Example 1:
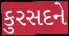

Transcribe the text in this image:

કુરસદને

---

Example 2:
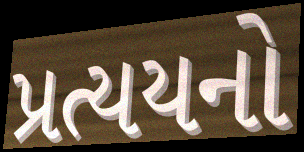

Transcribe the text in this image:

પ્રત્યયનો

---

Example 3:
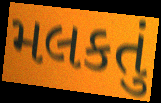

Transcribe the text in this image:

મલકતું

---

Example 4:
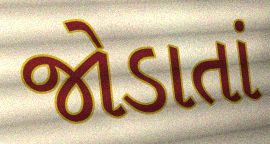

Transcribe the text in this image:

જોડાતાં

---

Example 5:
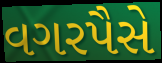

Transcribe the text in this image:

વગરપૈસે